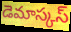
డెమాస్కస్